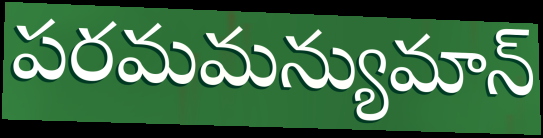
పరమమన్యుమాన్